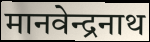
मानवेन्द्रनाथ